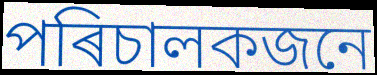
পৰিচালকজনে